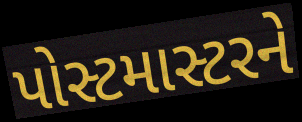
પોસ્ટમાસ્ટરને